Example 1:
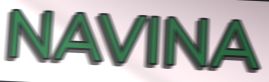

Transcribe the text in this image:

NAVINA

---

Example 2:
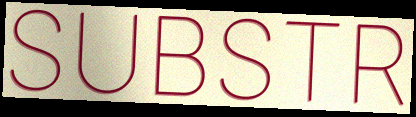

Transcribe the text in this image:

SUBSTR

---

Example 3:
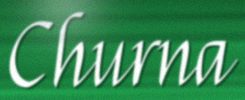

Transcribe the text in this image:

Churna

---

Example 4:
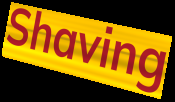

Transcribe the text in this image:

Shaving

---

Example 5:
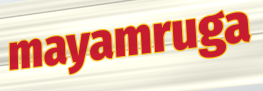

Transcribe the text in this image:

mayamruga